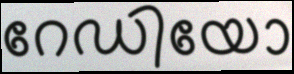
റേഡിയോ